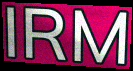
IRM